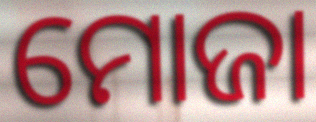
ମୋଜା